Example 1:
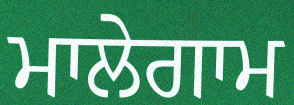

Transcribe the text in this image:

ਮਾਲੇਗਾਮ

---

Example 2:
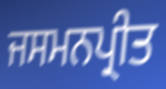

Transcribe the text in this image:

ਜਸਮਨਪ੍ਰੀਤ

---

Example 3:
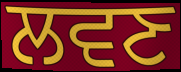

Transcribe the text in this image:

ਲਵਣ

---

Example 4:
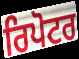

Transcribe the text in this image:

ਰਿਪੋਟਰ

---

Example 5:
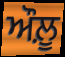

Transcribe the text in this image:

ਔਲ਼ੂ